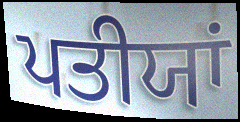
ਪਤੀਯਾਂ